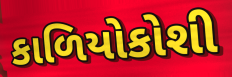
કાળિયોકોશી